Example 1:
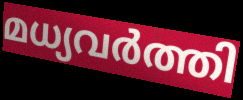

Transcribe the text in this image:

മധ്യവർത്തി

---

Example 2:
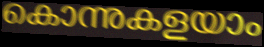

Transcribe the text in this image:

കൊന്നുകളയാം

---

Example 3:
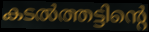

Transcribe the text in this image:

കടൽത്തട്ടിന്റെ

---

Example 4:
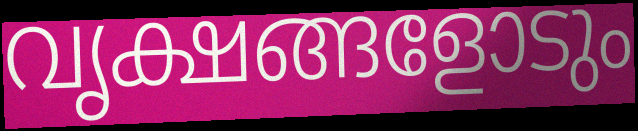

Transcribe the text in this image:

വൃക്ഷങ്ങളോടും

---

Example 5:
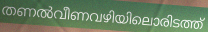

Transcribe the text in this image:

തണൽവീണവഴിയിലൊരിടത്ത്